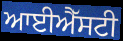
ਆਈਐੱਸਟੀ